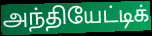
அந்தியேட்டிக்